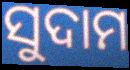
ସୁଦାମ